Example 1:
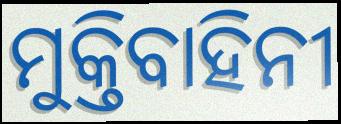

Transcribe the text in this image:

ମୁକ୍ତିବାହିନୀ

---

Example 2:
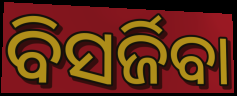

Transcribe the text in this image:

ବିସର୍ଜିବା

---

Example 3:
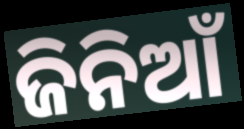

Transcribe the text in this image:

ଜିନିଆଁ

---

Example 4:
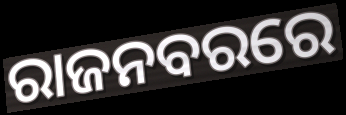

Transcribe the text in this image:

ରାଜନବରରେ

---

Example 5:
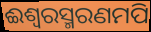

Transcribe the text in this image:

ଈଶ୍ଵରସ୍ମରଣମପି